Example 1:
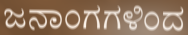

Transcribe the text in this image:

ಜನಾಂಗಗಳಿಂದ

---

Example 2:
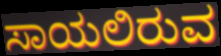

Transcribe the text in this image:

ಸಾಯಲಿರುವ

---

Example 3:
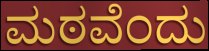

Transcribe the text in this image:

ಮಠವೆಂದು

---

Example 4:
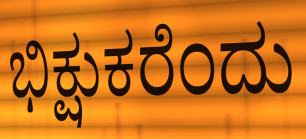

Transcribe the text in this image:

ಭಿಕ್ಷುಕರೆಂದು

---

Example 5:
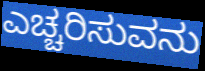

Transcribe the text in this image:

ಎಚ್ಚರಿಸುವನು